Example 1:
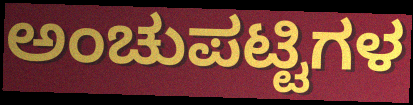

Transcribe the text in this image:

ಅಂಚುಪಟ್ಟಿಗಳ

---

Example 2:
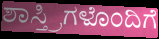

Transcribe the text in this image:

ಶಾಸ್ತ್ರಿಗಳೊಂದಿಗೆ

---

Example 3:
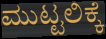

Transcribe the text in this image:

ಮುಟ್ಟಲಿಕ್ಕೆ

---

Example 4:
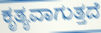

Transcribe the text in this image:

ಕೃತ್ಯವಾಗುತ್ತದೆ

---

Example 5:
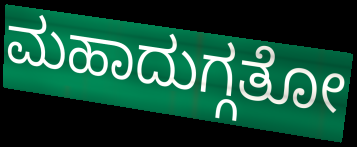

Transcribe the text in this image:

ಮಹಾದುಗ್ಗತೋ